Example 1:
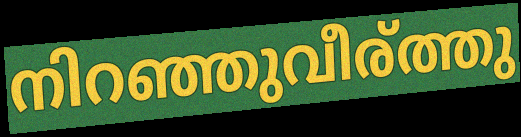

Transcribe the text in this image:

നിറഞ്ഞുവീര്ത്തു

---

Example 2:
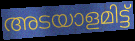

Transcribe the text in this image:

അടയാളമിട്ട്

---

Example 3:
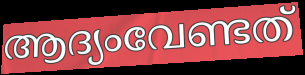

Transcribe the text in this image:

ആദ്യംവേണ്ടത്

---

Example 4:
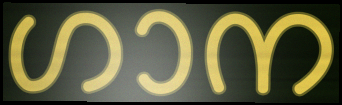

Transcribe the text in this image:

ഗാന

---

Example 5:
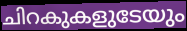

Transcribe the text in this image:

ചിറകുകളുടേയും